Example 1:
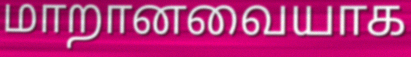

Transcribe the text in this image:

மாறானவையாக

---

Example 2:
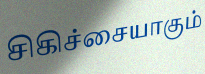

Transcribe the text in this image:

சிகிச்சையாகும்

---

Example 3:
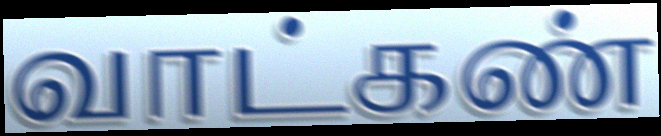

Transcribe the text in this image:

வாட்கண்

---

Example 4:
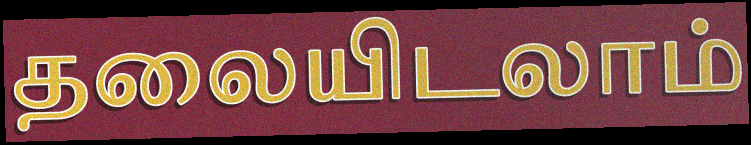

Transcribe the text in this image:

தலையிடலாம்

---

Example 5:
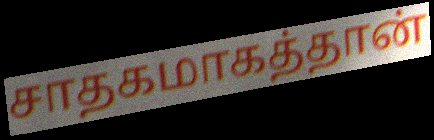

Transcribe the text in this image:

சாதகமாகத்தான்